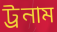
ট্রনাম